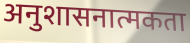
अनुशासनात्मकता